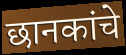
छानकांचे